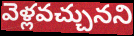
వెళ్లవచ్చునని